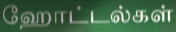
ஹோட்டல்கள்